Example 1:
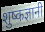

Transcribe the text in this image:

शुष्कज्ञानी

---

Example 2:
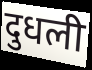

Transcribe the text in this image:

दुधली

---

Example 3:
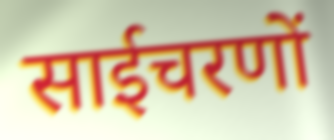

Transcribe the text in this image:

साईचरणों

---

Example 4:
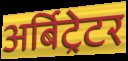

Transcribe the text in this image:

अर्बिट्रेटर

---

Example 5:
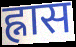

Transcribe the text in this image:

ह्नास